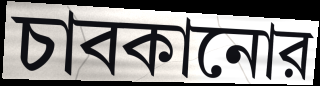
চাবকানোর